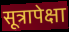
सूत्रापेक्षा